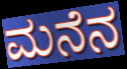
ಮನೆನ